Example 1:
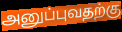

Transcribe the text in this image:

அனுப்புவதற்கு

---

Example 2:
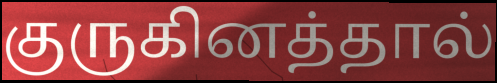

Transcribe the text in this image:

குருகினத்தால்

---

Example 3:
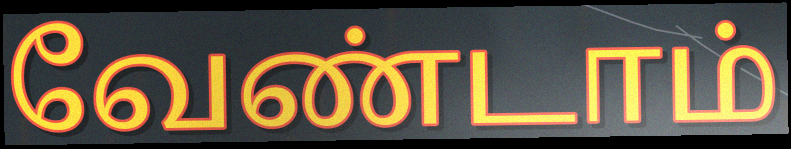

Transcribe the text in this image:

வேண்டாம்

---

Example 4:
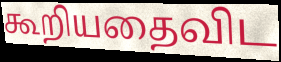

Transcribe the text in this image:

கூறியதைவிட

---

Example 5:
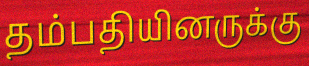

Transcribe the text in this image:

தம்பதியினருக்கு